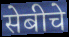
सेबीचे